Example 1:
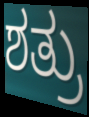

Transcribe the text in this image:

ಶತ್ರು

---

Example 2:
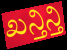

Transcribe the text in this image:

ಖನ್ತಿನ್ತಿ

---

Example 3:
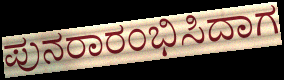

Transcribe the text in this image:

ಪುನರಾರಂಭಿಸಿದಾಗ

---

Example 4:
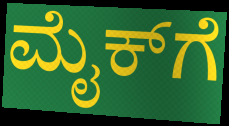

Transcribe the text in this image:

ಮೈಕ್‌ಗೆ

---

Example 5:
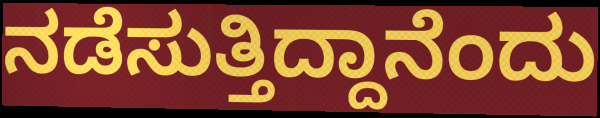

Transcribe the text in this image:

ನಡೆಸುತ್ತಿದ್ದಾನೆಂದು